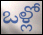
ఒళ్లో